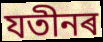
যতীনৰ